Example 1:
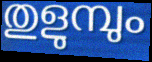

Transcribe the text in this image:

തുളുമ്പും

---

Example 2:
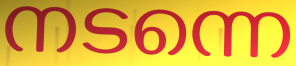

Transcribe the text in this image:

നടന്നെ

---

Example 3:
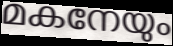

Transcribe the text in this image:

മകനേയും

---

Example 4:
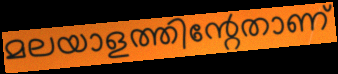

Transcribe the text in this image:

മലയാളത്തിന്റേതാണ്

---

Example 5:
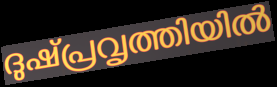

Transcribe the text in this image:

ദുഷ്പ്രവൃത്തിയിൽ